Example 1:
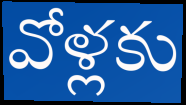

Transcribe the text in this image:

వోళ్లకు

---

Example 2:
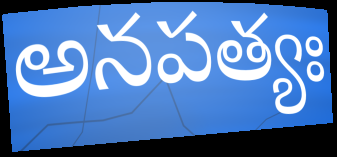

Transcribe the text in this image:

అనపత్యః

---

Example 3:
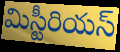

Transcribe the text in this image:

మిస్టీరియస్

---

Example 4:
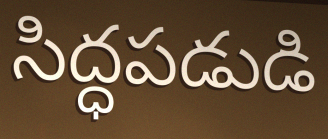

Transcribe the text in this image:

సిద్ధపడుడి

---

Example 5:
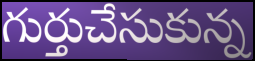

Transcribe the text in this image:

గుర్తుచేసుకున్న